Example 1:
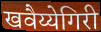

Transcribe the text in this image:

खवैय्येगिरी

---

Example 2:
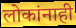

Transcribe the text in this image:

लोकांनाही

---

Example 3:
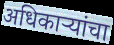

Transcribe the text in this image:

अधिकाऱ्यांचा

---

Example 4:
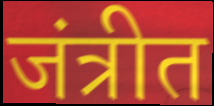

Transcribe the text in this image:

जंत्रीत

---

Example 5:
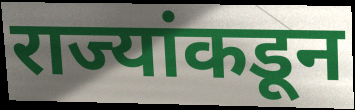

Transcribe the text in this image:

राज्यांकडून